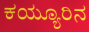
ಕಯ್ಯೂರಿನ